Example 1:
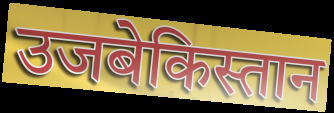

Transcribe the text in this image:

उजबेकिस्तान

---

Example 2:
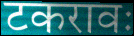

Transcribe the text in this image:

टकरावः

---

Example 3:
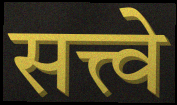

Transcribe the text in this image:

सत्त्वे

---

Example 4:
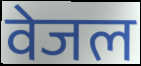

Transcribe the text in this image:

वेजल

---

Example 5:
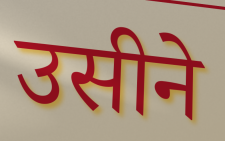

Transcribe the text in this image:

उसीने